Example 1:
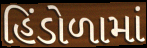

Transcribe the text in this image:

હિંડોળામાં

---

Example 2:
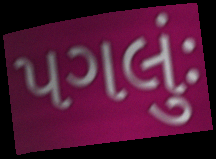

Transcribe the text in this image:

પગલુંઃ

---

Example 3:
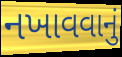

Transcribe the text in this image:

નખાવવાનું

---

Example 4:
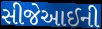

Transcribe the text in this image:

સીજેઆઈની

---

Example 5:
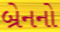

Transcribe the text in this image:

બ્રેનનો